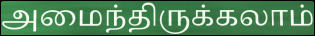
அமைந்திருக்கலாம்